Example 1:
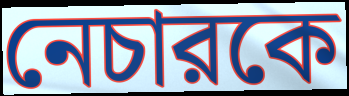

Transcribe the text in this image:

নেচারকে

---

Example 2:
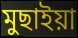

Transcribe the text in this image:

মুছাইয়া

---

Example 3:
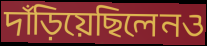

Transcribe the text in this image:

দাঁড়িয়েছিলেনও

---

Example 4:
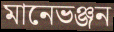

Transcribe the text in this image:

মানেভঞ্জন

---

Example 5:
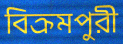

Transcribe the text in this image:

বিক্রমপুরী